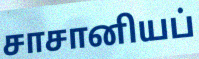
சாசானியப்